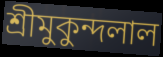
শ্রীমুকুন্দলাল